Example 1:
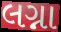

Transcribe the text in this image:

લગ્ના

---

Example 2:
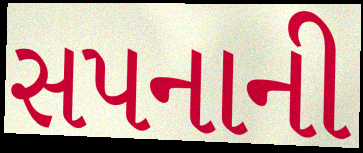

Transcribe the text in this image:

સપનાની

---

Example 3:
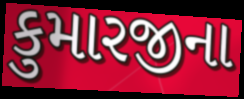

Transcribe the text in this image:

કુમારજીના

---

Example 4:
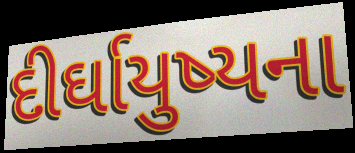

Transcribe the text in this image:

દીર્ઘાયુષ્યના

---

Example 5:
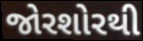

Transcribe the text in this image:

જોરશોરથી